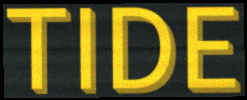
TIDE